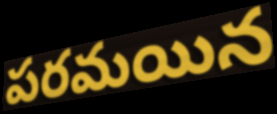
పరమయిన